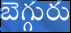
బెగ్గురు